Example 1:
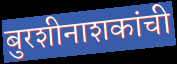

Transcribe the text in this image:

बुरशीनाशकांची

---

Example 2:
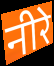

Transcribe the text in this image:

नीरे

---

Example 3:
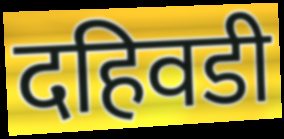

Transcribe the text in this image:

दहिवडी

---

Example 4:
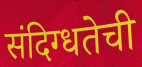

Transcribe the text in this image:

संदिग्धतेची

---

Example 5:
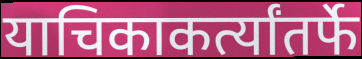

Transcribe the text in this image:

याचिकाकर्त्यांतर्फे